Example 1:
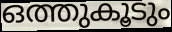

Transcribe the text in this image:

ഒത്തുകൂടും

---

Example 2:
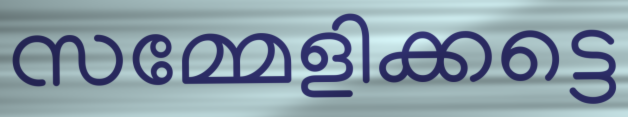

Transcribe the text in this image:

സമ്മേളിക്കട്ടെ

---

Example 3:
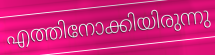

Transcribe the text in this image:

എത്തിനോക്കിയിരുന്നു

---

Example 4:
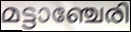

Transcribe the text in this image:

മട്ടാഞ്ചേരി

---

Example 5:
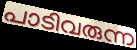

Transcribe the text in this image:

പാടിവരുന്ന